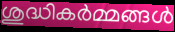
ശുദ്ധികർമ്മങ്ങൾ